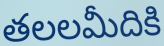
తలలమీదికి